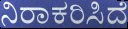
ನಿರಾಕರಿಸಿದೆ